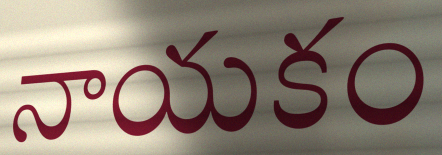
నాయకం